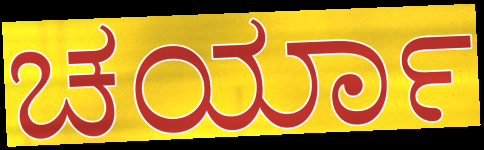
ಚರ್ಯಾ